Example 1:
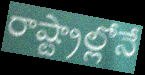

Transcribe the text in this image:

రాష్ట్రాల్లోనే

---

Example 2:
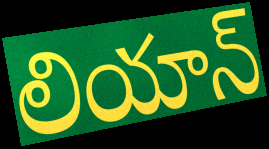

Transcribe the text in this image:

లియాన్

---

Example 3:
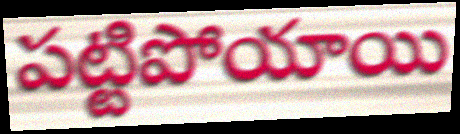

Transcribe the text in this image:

పట్టిపోయాయి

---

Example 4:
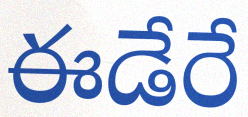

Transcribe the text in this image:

ఈడేరే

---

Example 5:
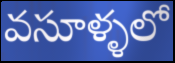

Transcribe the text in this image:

వసూళ్ళలో